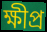
ক্ষীপ্ৰ